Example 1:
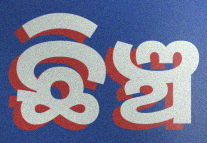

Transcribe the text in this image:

ଛିଞ୍ଚ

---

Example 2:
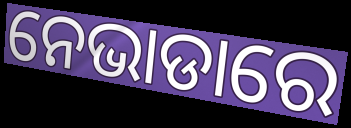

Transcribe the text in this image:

ନେଭାଡାରେ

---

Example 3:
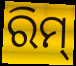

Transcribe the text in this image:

ରିମ୍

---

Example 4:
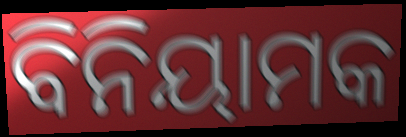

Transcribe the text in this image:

ବିନିୟାମକ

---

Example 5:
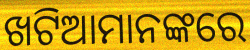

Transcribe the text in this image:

ଖଟିଆମାନଙ୍କରେ